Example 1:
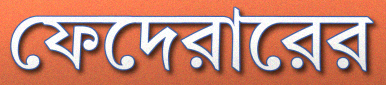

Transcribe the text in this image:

ফেদেরারের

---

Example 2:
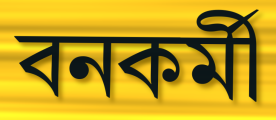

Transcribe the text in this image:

বনকর্মী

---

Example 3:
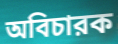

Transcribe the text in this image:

অবিচারক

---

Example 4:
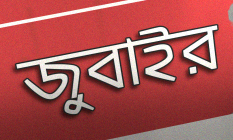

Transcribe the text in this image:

জুবাইর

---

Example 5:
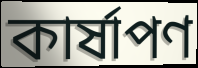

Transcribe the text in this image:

কার্ষাপণ